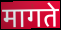
मागते